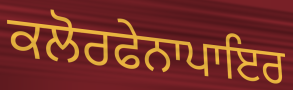
ਕਲੋਰਫੇਨਾਪਾਇਰ